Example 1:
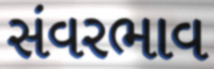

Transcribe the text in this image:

સંવરભાવ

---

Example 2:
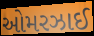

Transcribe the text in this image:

ઓમરઝાઈ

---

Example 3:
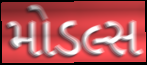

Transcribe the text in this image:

મોડલ્સ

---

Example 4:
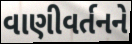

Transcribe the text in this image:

વાણીવર્તનને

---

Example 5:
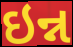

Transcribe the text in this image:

ઇન્ન